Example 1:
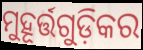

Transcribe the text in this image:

ମୁହୂର୍ତ୍ତଗୁଡ଼ିକର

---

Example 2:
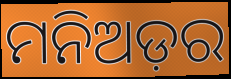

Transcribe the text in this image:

ମନିଅଡ଼ର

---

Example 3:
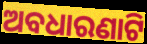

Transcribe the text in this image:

ଅବଧାରଣାଟି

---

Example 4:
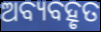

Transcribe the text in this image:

ଅବ୍ୟବହୃତ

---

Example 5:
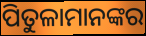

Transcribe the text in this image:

ପିତୁଳାମାନଙ୍କର